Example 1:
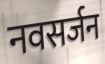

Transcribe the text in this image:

नवसर्जन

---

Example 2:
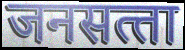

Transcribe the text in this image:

जनसत्‍ता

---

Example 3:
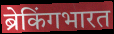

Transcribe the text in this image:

ब्रेकिंगभारत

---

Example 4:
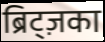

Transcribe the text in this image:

ब्रिट्ज़का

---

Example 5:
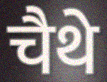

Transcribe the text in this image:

चैथे